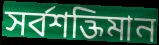
সৰ্বশক্তিমান